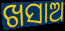
ଖସାଅ